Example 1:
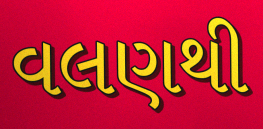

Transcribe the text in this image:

વલણથી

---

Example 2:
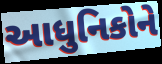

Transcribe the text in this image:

આધુનિકોને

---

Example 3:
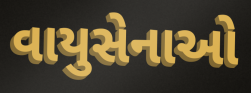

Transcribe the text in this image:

વાયુસેનાઓ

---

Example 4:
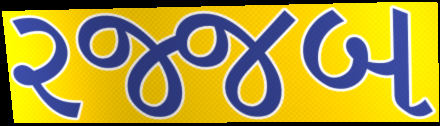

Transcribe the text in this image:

રજ્જબ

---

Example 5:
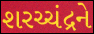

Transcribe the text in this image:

શરચ્ચંદ્રને